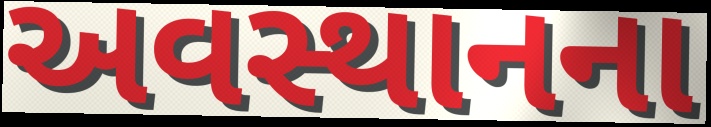
અવસ્થાનના